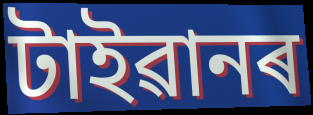
টাইৱানৰ